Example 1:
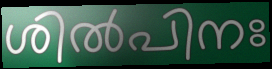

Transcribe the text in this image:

ശിൽപിനഃ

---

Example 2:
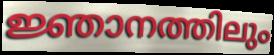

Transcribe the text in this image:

ജ്ഞാനത്തിലും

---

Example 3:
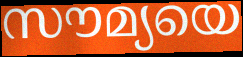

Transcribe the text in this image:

സൗമ്യയെ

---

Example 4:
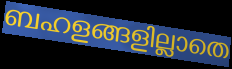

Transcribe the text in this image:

ബഹളങ്ങളില്ലാതെ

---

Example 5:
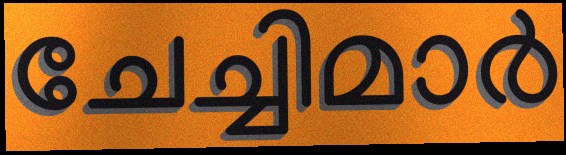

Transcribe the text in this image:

ചേച്ചിമാർ